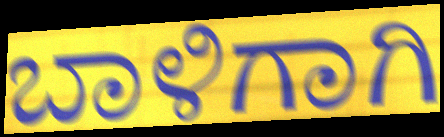
ಬಾಳಿಗಾಗಿ